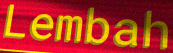
Lembah